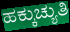
ಹಕ್ಕುಚ್ಯುತಿ